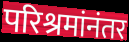
परिश्रमांनंतर